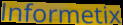
Informetix